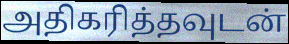
அதிகரித்தவுடன்